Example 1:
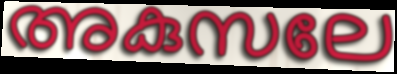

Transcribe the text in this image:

അകുസലേ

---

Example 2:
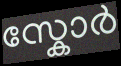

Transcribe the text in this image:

സ്കോർ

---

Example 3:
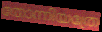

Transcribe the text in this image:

തോന്നിയത്രേ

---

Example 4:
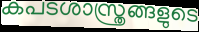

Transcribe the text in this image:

കപടശാസ്ത്രങ്ങളുടെ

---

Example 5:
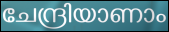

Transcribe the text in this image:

ചേന്ദ്രിയാണാം